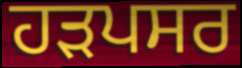
ਹੜਪਸਰ